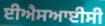
ਈਐਸਆਈਸੀ